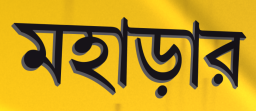
মহাড়ার